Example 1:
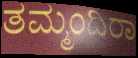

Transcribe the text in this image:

ತಮ್ಮಂದಿರಾ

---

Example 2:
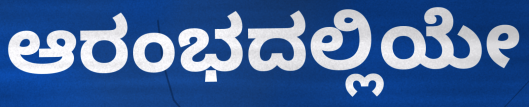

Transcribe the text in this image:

ಆರಂಭದಲ್ಲಿಯೇ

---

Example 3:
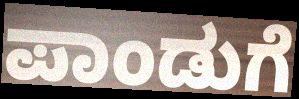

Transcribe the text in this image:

ಪಾಂಡುಗೆ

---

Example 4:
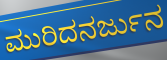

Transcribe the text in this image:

ಮುರಿದನರ್ಜುನ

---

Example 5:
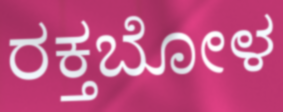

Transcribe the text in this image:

ರಕ್ತಬೋಳ